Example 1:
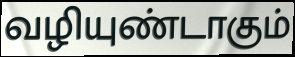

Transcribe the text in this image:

வழியுண்டாகும்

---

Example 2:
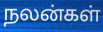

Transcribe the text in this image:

நலன்கள்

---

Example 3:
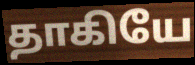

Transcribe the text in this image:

தாகியே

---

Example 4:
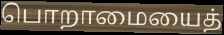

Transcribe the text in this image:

பொறாமையைத்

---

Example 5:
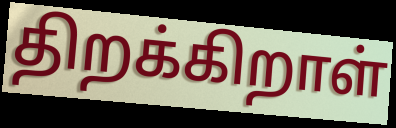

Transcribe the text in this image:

திறக்கிறாள்